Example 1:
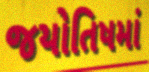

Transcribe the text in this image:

જયોતિષમાં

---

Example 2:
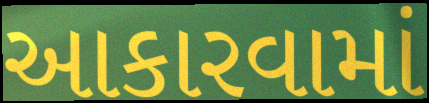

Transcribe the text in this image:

આકારવામાં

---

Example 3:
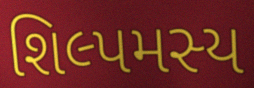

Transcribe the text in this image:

શિલ્પમસ્ય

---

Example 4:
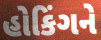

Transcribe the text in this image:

હોકિંગને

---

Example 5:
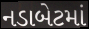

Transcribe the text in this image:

નડાબેટમાં